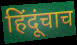
हिंदूंचाच